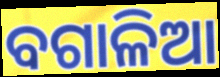
ବଗାଳିଆ